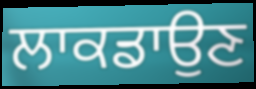
ਲਾਕਡਾਉਣ